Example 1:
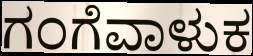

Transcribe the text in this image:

ಗಂಗೆವಾಳುಕ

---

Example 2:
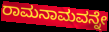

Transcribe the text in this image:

ರಾಮನಾಮವನ್ನೇ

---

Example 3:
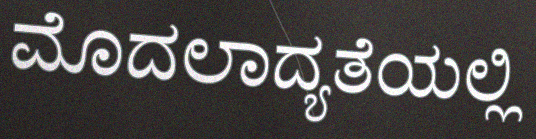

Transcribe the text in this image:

ಮೊದಲಾದ್ಯತೆಯಲ್ಲಿ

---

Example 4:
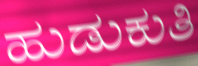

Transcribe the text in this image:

ಹುಡುಕುತಿ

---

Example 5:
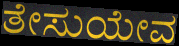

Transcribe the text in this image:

ತೇಸುಯೇವ